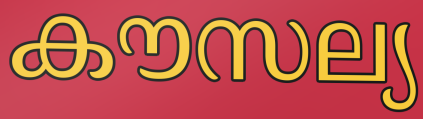
കൗസല്യ